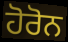
ਹੋਰੋਨ